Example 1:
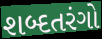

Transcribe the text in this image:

શબ્દતરંગો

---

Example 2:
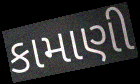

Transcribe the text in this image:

કામાણી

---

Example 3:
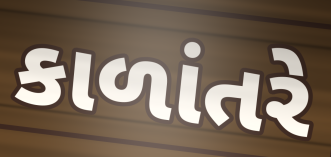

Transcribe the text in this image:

કાળાંતરે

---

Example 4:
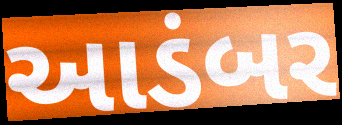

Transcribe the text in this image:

આડંબર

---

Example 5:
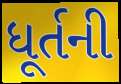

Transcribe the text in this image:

ધૂર્તની